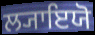
ਲ੍ਯਾਇਯੋ